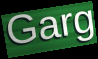
Garg